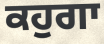
ਕਹੁਗਾ